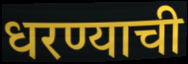
धरण्याची